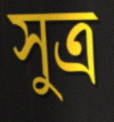
সুত্ৰ